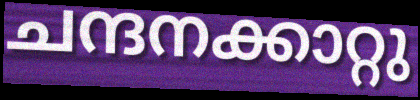
ചന്ദനക്കാറ്റു